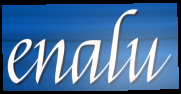
enalu